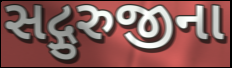
સદ્ગુરુજીના